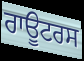
ਰਾਊਟਰਸ